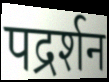
पद्रर्शन